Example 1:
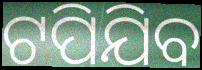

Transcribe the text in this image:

ଟପିଯିବ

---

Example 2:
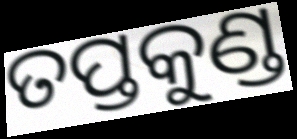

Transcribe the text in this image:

ତପ୍ତକୁଣ୍ଡ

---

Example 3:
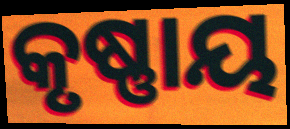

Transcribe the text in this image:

କୃଷ୍ଣାୟ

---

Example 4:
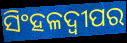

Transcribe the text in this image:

ସିଂହଳଦ୍ୱୀପର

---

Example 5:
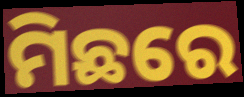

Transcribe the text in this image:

ମିଛରେ